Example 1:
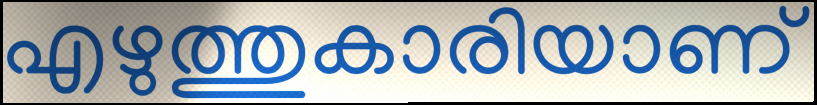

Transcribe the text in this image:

എഴുത്തുകാരിയാണ്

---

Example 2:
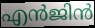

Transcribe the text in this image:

എൻജിൻ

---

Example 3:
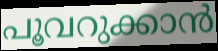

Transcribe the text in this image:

പൂവറുക്കാൻ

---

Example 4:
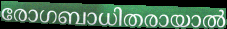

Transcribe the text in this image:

രോഗബാധിതരായാൽ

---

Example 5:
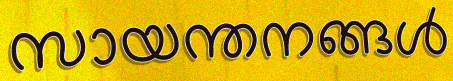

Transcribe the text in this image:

സായന്തനങ്ങൾ